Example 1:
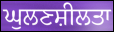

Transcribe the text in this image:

ਘੁਲਣਸ਼ੀਲਤਾ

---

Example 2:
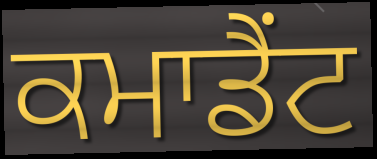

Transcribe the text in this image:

ਕਮਾਡੈਂਟ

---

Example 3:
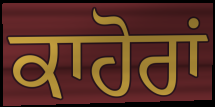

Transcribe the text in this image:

ਕਾਹੋਰਾਂ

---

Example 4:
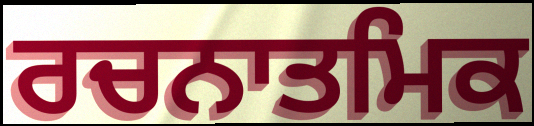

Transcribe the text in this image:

ਰਚਨਾਤਮਿਕ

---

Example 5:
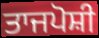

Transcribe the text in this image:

ਤਾਜਪੋਸ਼ੀ